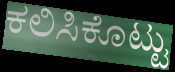
ಕಲಿಸಿಕೊಟ್ಟು